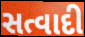
સત્વાદી